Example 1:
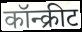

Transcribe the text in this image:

कॉन्क्रीट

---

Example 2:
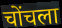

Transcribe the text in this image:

चोंचला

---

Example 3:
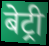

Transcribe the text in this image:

बेट्री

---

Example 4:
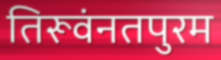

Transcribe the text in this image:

तिरूवंनतपुरम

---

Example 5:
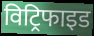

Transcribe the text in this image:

विट्रिफाइड